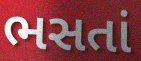
ભસતાં